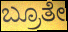
ಬ್ರೂತೇ